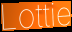
Lottie